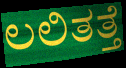
ಲಲಿತತ್ತೆ